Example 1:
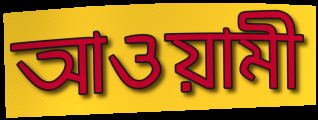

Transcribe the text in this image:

আওয়ামী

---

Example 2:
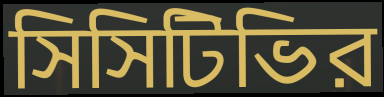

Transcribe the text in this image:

সিসিটিভির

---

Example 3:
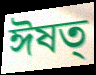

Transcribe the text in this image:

ঈষত্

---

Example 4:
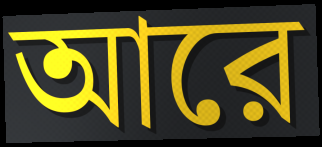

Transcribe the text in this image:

আরে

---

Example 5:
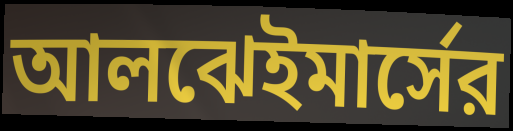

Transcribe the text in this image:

আলঝেইমার্সের